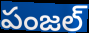
పంజల్